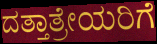
ದತ್ತಾತ್ರೇಯರಿಗೆ